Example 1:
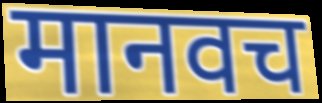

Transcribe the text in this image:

मानवच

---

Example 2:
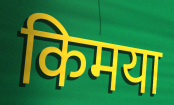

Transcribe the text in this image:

किमया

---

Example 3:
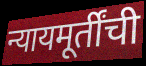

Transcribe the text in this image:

न्यायमूर्तींची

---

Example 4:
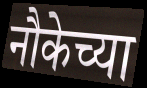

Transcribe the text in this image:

नौकेच्या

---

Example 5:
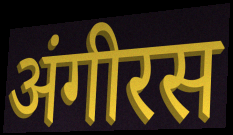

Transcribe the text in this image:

अंगीरस